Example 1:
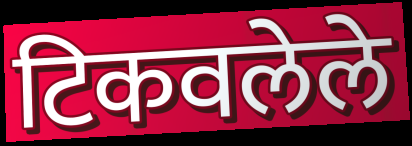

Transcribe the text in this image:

टिकवलेले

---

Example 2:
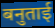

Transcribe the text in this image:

बनुताई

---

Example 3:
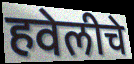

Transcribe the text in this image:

हवेलीचे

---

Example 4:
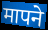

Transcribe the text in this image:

मापने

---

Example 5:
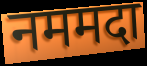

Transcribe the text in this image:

नममदा